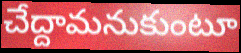
చేద్దామనుకుంటూ